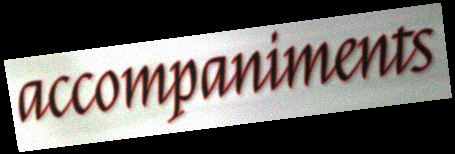
accompaniments